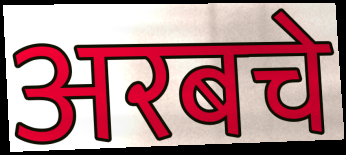
अरबचे